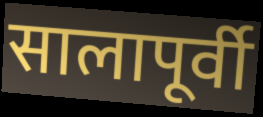
सालापूर्वी